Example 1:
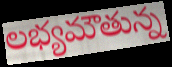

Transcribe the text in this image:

లభ్యమౌతున్న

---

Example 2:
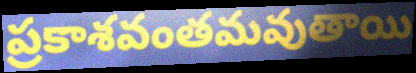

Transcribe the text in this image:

ప్రకాశవంతమవుతాయి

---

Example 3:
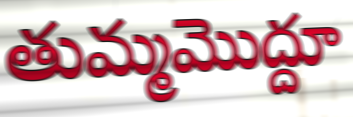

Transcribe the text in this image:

తుమ్మమొద్దూ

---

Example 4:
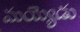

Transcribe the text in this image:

మయ్యెడు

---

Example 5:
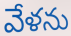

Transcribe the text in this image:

వేళను